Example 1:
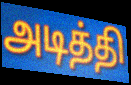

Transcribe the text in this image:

அடித்தி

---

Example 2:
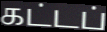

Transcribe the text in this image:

கட்டப்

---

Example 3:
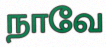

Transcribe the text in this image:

நாவே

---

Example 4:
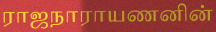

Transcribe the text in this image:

ராஜநாராயணனின்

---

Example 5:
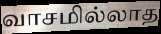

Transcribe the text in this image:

வாசமில்லாத